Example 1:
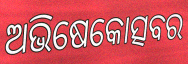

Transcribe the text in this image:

ଅଭିଷେକୋତ୍ସବର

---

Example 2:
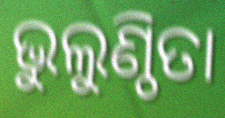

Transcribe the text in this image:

ଭୁଲୁଣ୍ଠିତା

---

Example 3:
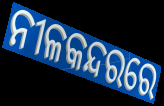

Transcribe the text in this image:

ନୀଳକନ୍ଦରରେ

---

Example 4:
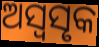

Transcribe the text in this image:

ଅସ୍ୱସୃକ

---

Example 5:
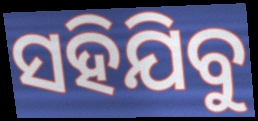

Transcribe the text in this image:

ସହିଯିବୁ